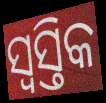
ସ୍ୱସ୍ତିକ